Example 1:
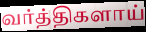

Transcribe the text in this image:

வர்த்திகளாய்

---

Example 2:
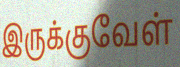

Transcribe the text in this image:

இருக்குவேள்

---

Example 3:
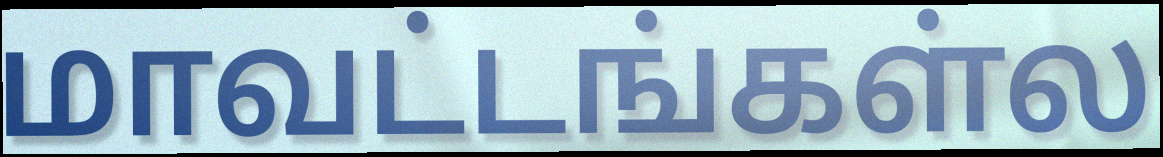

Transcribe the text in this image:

மாவட்டங்கள்ல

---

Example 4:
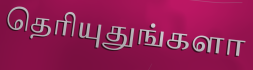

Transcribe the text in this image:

தெரியுதுங்களா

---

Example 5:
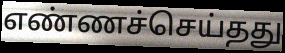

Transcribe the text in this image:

எண்ணச்செய்தது